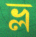
ভ্ল